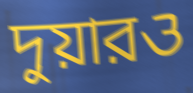
দুয়ারও